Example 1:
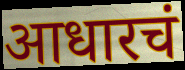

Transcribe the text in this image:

आधारचं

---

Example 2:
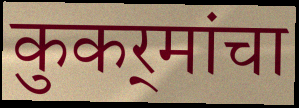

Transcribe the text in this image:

कुकर्मांचा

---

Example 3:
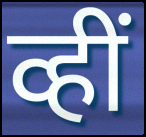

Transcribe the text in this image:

व्हीं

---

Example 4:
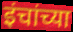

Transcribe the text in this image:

इंचांच्या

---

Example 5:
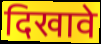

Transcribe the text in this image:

दिखावे